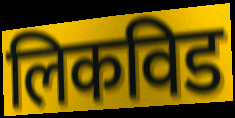
लिकविड